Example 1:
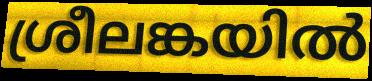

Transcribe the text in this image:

ശ്രീലങ്കയിൽ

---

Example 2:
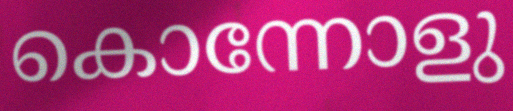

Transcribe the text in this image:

കൊന്നോളു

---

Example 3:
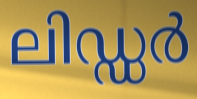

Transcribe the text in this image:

ലിഡ്ഡർ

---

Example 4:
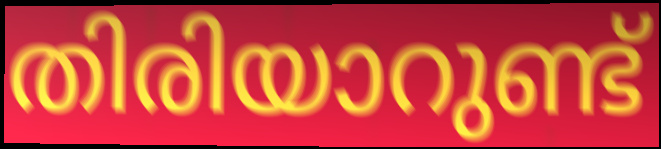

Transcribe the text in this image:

തിരിയാറുണ്ട്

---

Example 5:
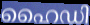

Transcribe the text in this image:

ഹൈഡി